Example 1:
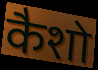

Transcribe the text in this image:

कैशो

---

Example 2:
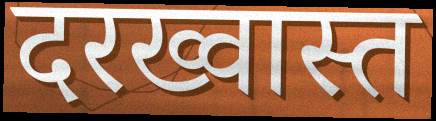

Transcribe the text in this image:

दरख्वास्त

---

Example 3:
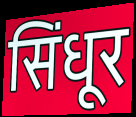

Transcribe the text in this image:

सिंधूर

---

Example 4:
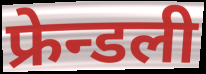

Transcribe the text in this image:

फ्रेन्डली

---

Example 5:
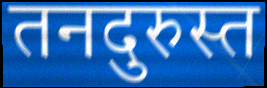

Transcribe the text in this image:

तनदुरुस्त